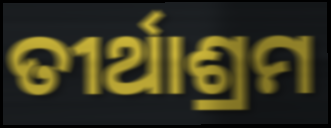
ତୀର୍ଥାଶ୍ରମ